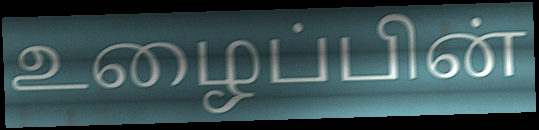
உழைப்பின்